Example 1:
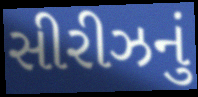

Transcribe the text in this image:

સીરીઝનું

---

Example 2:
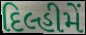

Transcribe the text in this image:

દિલ્હીમેં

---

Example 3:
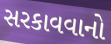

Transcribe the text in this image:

સરકાવવાનો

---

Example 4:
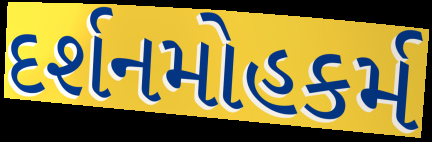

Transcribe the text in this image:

દર્શનમોહકર્મ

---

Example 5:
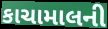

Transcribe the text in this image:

કાચામાલની